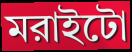
মরাইটো